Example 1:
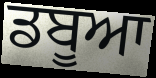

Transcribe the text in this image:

ਡਬੂਆ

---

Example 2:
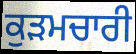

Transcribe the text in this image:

ਕੁੜਮਚਾਰੀ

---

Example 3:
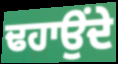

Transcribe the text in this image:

ਢਹਾਉਂਦੇ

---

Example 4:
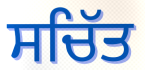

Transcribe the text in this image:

ਸਚਿੱਤ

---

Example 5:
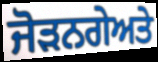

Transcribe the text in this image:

ਜੋੜਨਗੇਅਤੇ